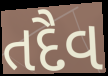
તદૈવ